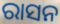
ରାସନ